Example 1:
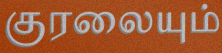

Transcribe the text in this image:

குரலையும்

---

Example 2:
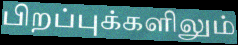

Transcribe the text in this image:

பிறப்புக்களிலும்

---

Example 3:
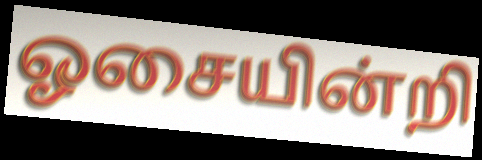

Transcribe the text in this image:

ஓசையின்றி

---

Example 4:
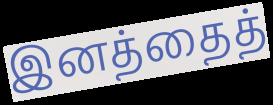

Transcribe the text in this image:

இனத்தைத்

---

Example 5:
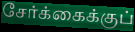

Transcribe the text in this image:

சேர்க்கைக்குப்